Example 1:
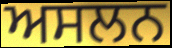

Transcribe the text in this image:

ਅਸਲਨ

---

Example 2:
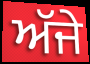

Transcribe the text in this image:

ਅੱਜੇ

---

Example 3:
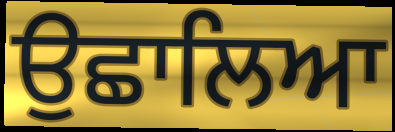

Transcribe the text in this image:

ਉਛਾਲਿਆ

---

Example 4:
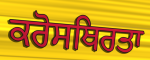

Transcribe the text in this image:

ਕਰੋਸਥਿਰਤਾ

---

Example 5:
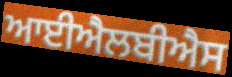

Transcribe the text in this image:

ਆਈਐਲਬੀਐਸ